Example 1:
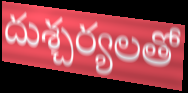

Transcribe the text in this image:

దుశ్చర్యలతో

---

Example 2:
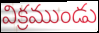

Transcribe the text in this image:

విక్రముండు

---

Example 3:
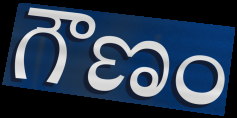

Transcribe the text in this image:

గౌణం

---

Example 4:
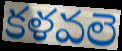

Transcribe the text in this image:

కళవలె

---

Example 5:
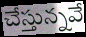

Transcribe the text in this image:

చేస్తున్నవే